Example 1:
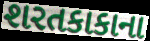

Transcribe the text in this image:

શરતકાકાના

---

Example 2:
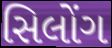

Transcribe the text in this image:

સિલોંગ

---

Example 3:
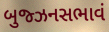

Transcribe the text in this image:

બુજ્ઝનસભાવં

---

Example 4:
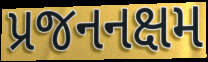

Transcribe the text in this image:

પ્રજનનક્ષમ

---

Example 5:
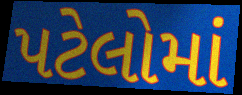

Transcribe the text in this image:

પટેલોમાં